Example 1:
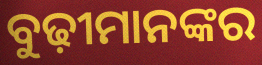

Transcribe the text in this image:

ବୁଢ଼ୀମାନଙ୍କର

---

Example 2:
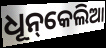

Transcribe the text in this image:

ଧୂନ୍‌କେଲିଆ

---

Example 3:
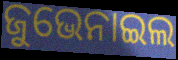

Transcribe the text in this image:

ଜୁଭେନାଇଲ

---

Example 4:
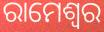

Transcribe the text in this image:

ରାମେଶ୍ୱର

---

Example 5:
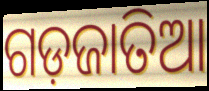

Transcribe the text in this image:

ଗଡ଼ଜାତିଆ